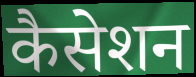
कैसेशन